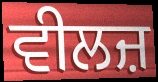
ਵੀਲਜ਼